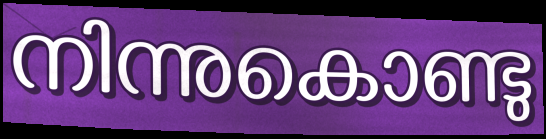
നിന്നുകൊണ്ടു